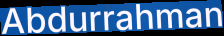
Abdurrahman